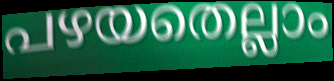
പഴയതെല്ലാം